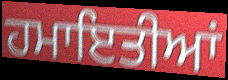
ਹਮਾਇਤੀਆਂ